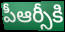
పీఆర్సీకి